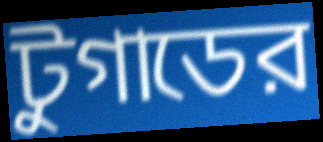
টুগাডের